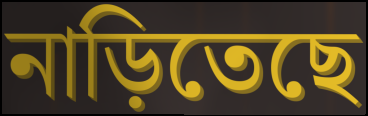
নাড়িতেছে